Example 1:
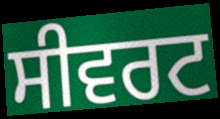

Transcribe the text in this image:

ਸੀਵਰਟ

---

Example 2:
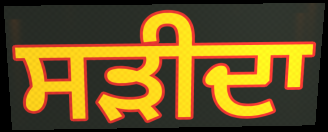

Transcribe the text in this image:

ਸੜੀਦਾ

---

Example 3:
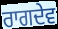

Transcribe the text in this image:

ਰਾਗਦੇਵ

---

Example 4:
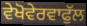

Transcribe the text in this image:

ਵੇਖੋਵੇਰਵਾਫੁੱਲ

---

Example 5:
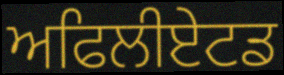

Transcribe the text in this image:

ਅਫਿਲੀਏਟਡ